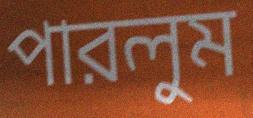
পারলুম